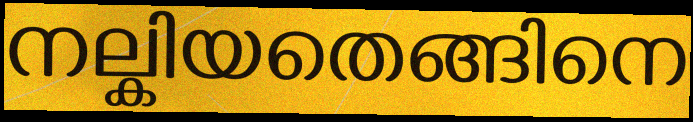
നല്കിയതെങ്ങിനെ